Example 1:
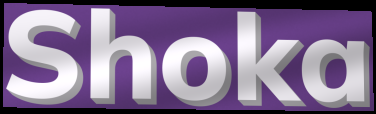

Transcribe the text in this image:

Shoka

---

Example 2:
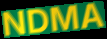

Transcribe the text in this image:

NDMA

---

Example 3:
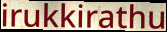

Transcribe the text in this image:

irukkirathu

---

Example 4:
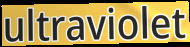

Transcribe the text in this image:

ultraviolet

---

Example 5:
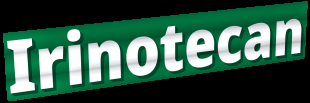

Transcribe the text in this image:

Irinotecan